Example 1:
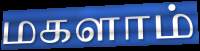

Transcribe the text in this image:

மகளாம்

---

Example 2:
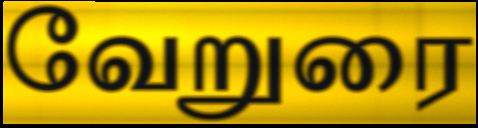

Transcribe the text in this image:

வேறுரை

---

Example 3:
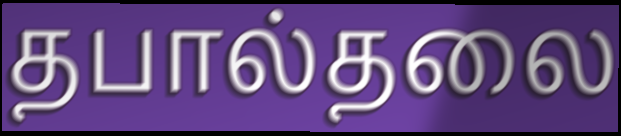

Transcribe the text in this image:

தபால்தலை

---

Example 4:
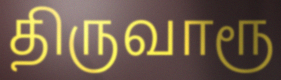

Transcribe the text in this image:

திருவாரூ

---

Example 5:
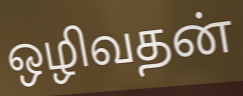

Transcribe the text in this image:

ஒழிவதன்